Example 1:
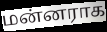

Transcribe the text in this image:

மன்னராக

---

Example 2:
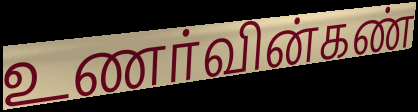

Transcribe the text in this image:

உணர்வின்கண்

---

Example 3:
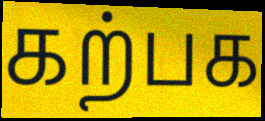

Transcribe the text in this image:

கற்பக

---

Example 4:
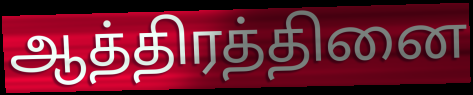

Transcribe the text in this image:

ஆத்திரத்தினை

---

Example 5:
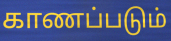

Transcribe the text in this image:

காணப்படும்